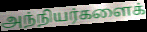
அந்நியர்களைக்